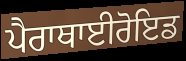
ਪੈਰਾਥਾਈਰੋਇਡ